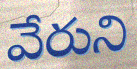
వేరుని